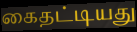
கைதட்டியது